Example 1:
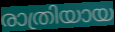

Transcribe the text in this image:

രാത്രിയായ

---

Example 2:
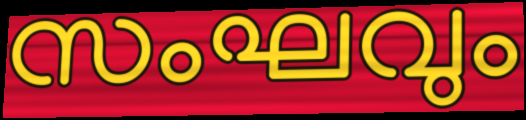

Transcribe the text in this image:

സംഘവും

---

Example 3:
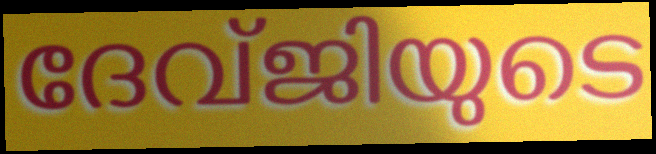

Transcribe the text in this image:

ദേവ്ജിയുടെ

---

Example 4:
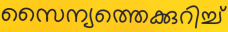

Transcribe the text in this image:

സൈന്യത്തെക്കുറിച്ച്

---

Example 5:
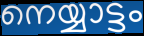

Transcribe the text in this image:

നെയ്യാട്ടം